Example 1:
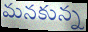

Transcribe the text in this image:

మనకున్న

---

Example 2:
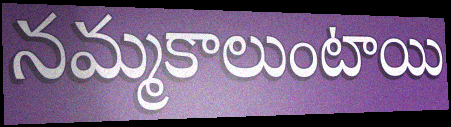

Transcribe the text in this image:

నమ్మకాలుంటాయి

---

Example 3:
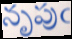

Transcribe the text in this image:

నృపుఁ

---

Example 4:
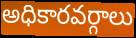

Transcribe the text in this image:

అధికారవర్గాలు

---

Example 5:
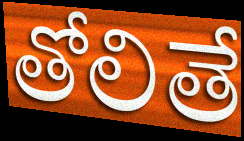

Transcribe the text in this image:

తోలితే